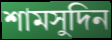
শামসুদিন